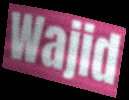
Wajid